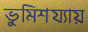
ভুমিশয্যায়